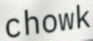
chowk